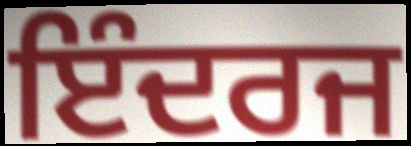
ਇੰਦਰਜ